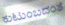
ಕುಟುಂಬದಂತೆ